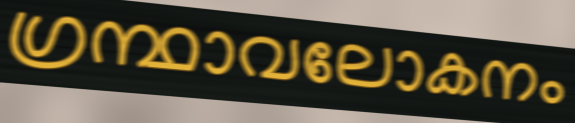
ഗ്രന്ഥാവലോകനം